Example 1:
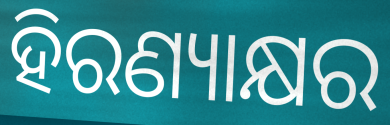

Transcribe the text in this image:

ହିରଣ୍ୟାକ୍ଷର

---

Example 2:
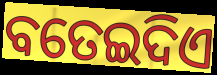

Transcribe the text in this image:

ବତେଇଦିଏ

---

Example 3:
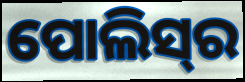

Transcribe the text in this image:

ପୋଲିସ୍‍ର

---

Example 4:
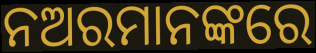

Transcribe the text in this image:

ନଅରମାନଙ୍କରେ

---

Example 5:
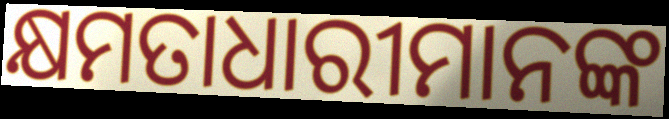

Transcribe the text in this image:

କ୍ଷମତାଧାରୀମାନଙ୍କ